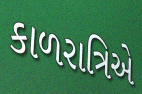
કાળરાત્રિએ